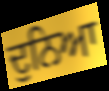
ਦੁਨਿਆ